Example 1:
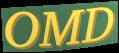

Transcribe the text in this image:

OMD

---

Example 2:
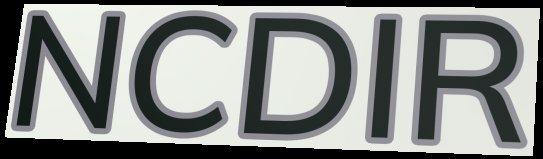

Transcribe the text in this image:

NCDIR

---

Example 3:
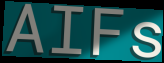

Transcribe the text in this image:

AIFs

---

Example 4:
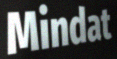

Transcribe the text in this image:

Mindat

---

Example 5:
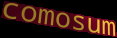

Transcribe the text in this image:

comosum